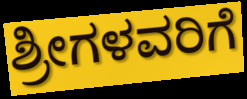
ಶ್ರೀಗಳವರಿಗೆ